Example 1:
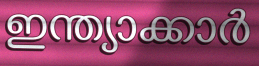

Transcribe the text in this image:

ഇന്ത്യാക്കാർ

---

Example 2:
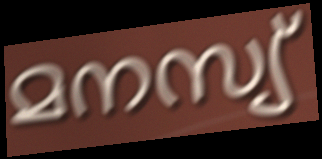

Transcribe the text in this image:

മനസ്യ്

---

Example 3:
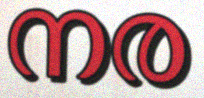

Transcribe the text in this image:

നര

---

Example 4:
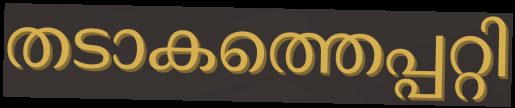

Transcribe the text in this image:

തടാകത്തെപ്പറ്റി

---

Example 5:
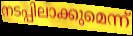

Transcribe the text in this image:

നടപ്പിലാക്കുമെന്ന്